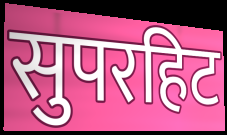
सुपरहिट